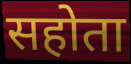
सहोता